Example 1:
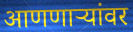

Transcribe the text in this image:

आणणाऱ्यांवर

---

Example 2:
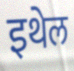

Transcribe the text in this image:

इथेल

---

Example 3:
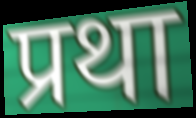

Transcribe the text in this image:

प्रथा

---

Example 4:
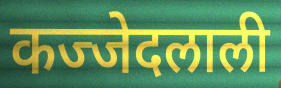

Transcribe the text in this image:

कज्जेदलाली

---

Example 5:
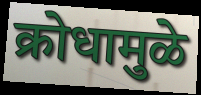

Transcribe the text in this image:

क्रोधामुळे